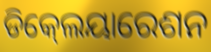
ଡିକ୍‍ଲେୟାରେଶନ